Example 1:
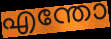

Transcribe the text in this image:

എന്തോ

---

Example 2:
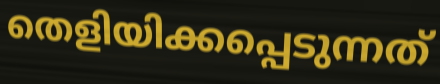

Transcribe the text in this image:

തെളിയിക്കപ്പെടുന്നത്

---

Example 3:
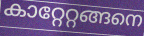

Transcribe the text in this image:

കാറ്റേറ്റങ്ങനെ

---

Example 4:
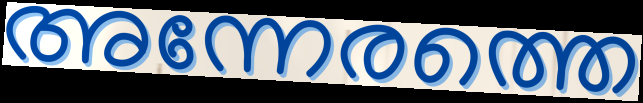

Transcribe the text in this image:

അന്നേരത്തെ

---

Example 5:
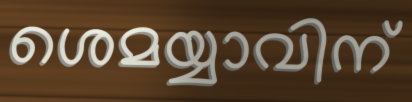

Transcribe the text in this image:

ശെമയ്യാവിന്